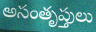
అసంతృప్తులు